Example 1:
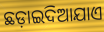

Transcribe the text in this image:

ଛଡ଼ାଇଦିଆଯାଏ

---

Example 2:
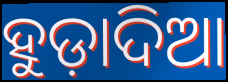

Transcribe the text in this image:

ହୁଡ଼ାଦିଆ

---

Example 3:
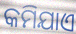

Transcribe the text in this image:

କମିଯାଏ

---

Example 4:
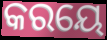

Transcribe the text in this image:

କରୟେ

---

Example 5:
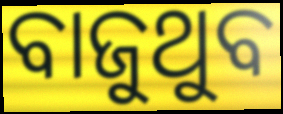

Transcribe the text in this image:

ବାଜୁଥୁବ